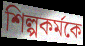
শিল্পকর্মকে